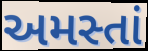
અમસ્તાં